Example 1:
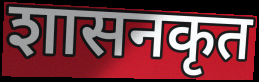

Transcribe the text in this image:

शासनकृत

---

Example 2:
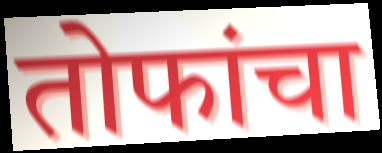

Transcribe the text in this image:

तोफांचा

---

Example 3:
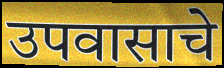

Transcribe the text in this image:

उपवासाचे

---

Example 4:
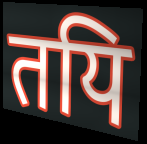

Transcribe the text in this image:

तयि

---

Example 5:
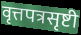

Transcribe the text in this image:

वृत्तपत्रसृष्टी